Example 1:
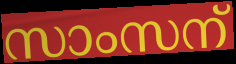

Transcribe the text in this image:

സാംസന്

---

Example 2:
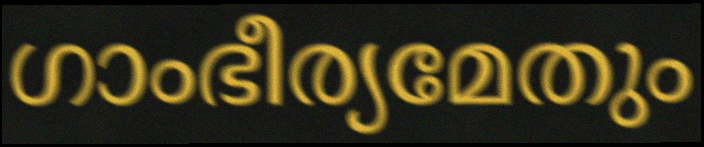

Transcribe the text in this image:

ഗാംഭീര്യമേതും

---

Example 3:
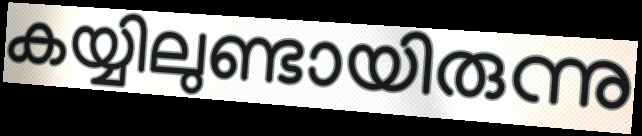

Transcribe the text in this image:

കയ്യിലുണ്ടായിരുന്നു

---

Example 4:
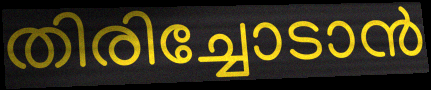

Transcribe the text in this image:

തിരിച്ചോടാൻ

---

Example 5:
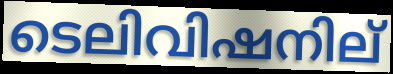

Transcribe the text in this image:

ടെലിവിഷനില്